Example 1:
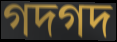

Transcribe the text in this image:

গদগদ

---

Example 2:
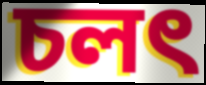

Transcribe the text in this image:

চলৎ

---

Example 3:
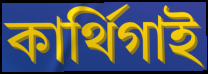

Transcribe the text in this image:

কার্থিগাই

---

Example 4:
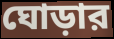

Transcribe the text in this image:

ঘোড়ার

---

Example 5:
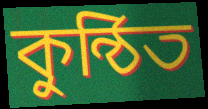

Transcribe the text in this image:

কুন্ঠিত